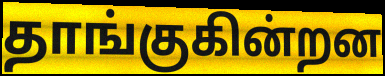
தாங்குகின்றன